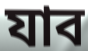
যাব